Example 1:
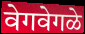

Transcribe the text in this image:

वेगवेगळे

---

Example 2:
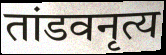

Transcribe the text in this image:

तांडवनृत्य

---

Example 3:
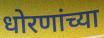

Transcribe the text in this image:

धोरणांच्या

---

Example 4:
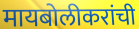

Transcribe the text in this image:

मायबोलीकरांची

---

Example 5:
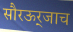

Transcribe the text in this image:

सौरऊर्जाच